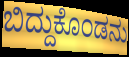
ಬಿದ್ದುಕೊಂಡನು